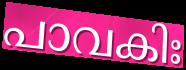
പാവകിഃ